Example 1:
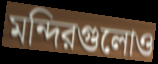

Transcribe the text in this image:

মন্দিরগুলোও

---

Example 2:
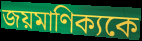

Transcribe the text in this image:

জয়মাণিক্যকে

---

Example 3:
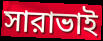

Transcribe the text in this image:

সারাভাই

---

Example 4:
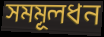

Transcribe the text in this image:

সমমূলধন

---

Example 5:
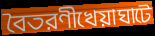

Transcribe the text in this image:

বৈতরণীখেয়াঘাটে